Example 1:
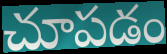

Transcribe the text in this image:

చూపడం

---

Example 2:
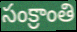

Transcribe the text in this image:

సంక్రాంతి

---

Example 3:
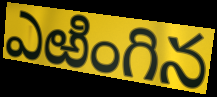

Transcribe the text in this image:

ఎఱింగిన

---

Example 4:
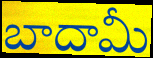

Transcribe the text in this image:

బాదామీ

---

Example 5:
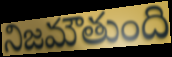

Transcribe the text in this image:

నిజమౌతుంది